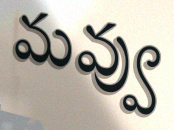
మవ్వు